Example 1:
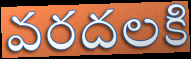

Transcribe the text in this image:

వరదలకి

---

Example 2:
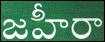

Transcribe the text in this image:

జహీరా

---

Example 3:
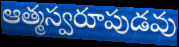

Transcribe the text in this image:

ఆత్మస్వరూపుడవు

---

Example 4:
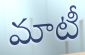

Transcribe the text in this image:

మాటీ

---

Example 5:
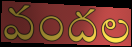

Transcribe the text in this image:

వందల